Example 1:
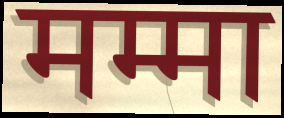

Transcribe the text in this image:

मम्मा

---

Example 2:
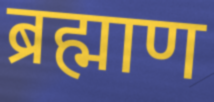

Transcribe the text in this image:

ब्रह्माण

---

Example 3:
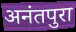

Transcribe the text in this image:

अनंतपुरा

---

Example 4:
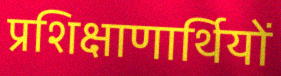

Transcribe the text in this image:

प्रशिक्षाणार्थियों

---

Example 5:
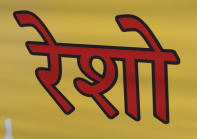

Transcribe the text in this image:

रेशो